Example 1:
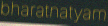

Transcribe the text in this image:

bharatnatyam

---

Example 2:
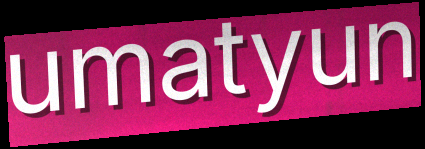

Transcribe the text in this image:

umatyun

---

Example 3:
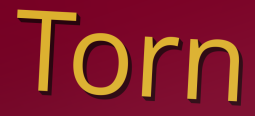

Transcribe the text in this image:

Torn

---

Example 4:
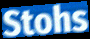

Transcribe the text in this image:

Stohs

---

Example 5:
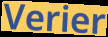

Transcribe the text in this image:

Verier